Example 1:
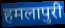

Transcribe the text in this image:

हमलापुरी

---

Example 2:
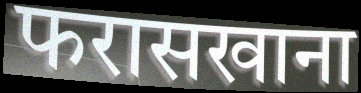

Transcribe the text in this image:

फरासखाना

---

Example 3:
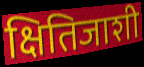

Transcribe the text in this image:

क्षितिजाशी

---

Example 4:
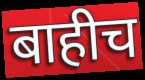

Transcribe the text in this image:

बाहीच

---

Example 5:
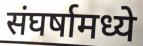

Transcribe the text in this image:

संघर्षामध्ये